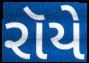
રૉયે